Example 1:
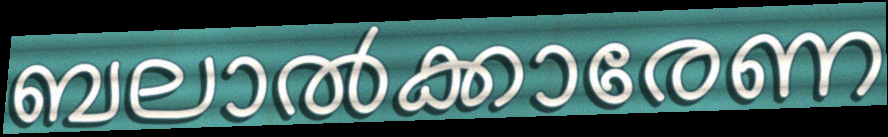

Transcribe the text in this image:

ബലാൽക്കാരേണ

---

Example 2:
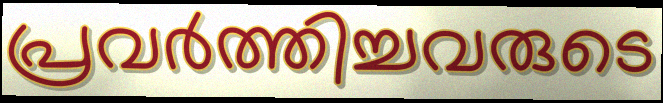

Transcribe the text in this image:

പ്രവർത്തിച്ചവരുടെ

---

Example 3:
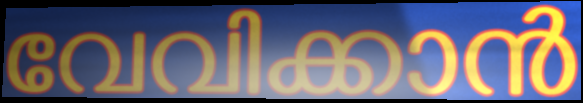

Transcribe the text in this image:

വേവിക്കാൻ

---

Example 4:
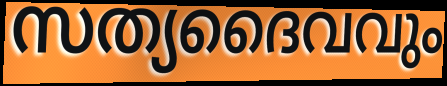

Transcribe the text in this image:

സത്യദൈവവും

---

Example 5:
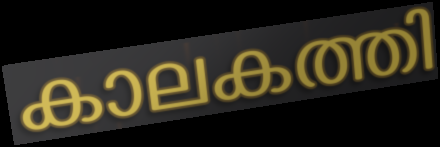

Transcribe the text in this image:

കാലകത്തി